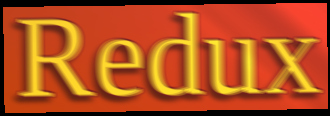
Redux